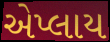
એપ્લાય